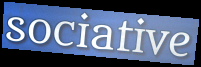
sociative